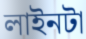
লাইনটা